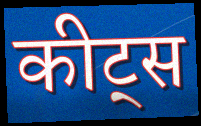
कीट्‌स